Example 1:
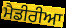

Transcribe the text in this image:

ਮੈਡੀਰੀਆ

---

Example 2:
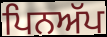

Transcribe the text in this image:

ਪਿਨਅੱਪ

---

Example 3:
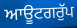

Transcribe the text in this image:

ਆਊਟਗਰੁੱਪ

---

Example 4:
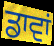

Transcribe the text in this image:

ਡਾਵਾਂ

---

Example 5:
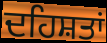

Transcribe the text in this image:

ਦਹਿਸ਼ਤਾਂ